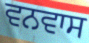
ਵਨਵਾਸ